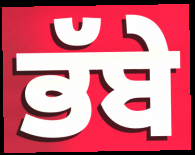
ਭੱਬੇ